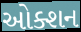
ઓક્શન